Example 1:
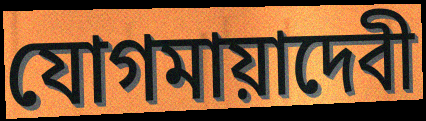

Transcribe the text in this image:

যোগমায়াদেবী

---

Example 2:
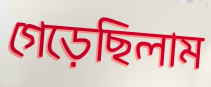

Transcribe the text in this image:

গেড়েছিলাম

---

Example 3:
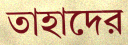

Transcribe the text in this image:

তাহাদের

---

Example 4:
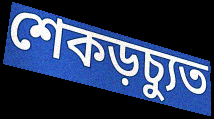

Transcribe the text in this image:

শেকড়চ্যুত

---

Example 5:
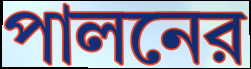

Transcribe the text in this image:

পালনের